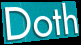
Doth